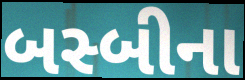
બસ્બીના